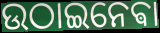
ଉଠାଇନେଵା